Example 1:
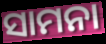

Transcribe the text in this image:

ସାମନା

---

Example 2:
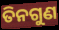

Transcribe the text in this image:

ତିନଗୁଣ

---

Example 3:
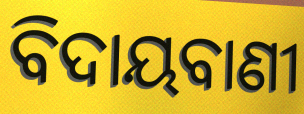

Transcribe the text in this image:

ବିଦାୟବାଣୀ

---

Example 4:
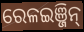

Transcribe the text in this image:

ରେଳଇଞ୍ଜିନ୍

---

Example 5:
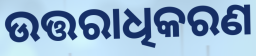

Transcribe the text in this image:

ଉତ୍ତରାଧିକରଣ